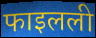
फाइलली